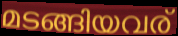
മടങ്ങിയവര്